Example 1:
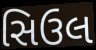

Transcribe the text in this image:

સિઉલ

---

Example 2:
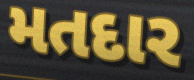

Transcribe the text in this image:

મતદાર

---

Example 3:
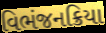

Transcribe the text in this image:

વિભંજનક્રિયા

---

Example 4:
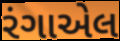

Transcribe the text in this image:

રંગાએલ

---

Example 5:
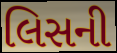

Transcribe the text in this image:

લિસની